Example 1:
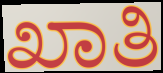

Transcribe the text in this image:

ಖಾತಿ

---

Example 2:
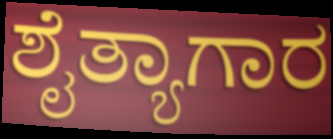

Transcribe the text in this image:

ಶೈತ್ಯಾಗಾರ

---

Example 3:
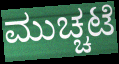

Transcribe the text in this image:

ಮುಚ್ಚಟೆ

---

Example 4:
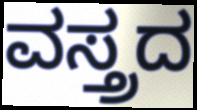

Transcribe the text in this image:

ವಸ್ತ್ರದ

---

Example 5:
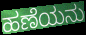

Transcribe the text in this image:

ಹಣೆಯನು